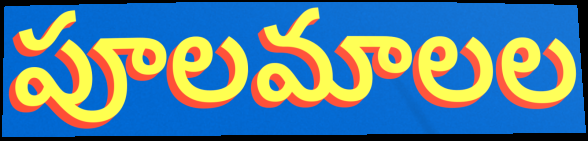
పూలమాలల